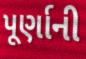
પૂર્ણાની